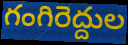
గంగిరెద్దుల